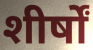
शीर्षों